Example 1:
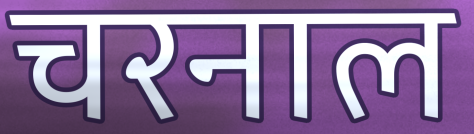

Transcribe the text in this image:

चरनाल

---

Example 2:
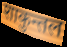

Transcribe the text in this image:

शाकुन्तल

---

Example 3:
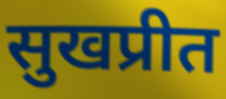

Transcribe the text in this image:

सुखप्रीत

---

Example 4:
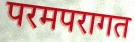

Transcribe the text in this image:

परमपरागत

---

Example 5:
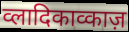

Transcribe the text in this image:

व्लादिकाव्काज़